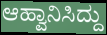
ಆಹ್ವಾನಿಸಿದ್ದು